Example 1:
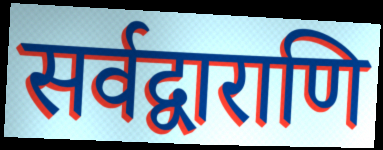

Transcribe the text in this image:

सर्वद्वाराणि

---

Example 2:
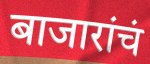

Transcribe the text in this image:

बाजारांचं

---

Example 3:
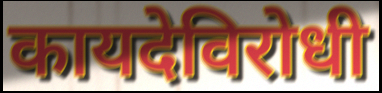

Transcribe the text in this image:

कायदेविरोधी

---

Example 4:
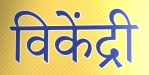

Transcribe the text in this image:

विकेंद्री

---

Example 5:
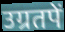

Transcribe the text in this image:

उग्रतपें